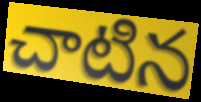
చాటిన